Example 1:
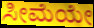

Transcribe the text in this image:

ಸೀಮೆಯೇ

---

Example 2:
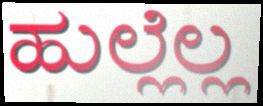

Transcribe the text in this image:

ಹುಲ್ಲೆಲ್ಲ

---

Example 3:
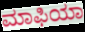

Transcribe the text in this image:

ಮಾಫಿಯಾ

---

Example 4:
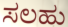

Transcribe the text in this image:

ಸಲಹು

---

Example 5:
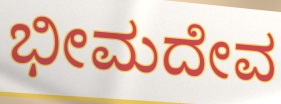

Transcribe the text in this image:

ಭೀಮದೇವ